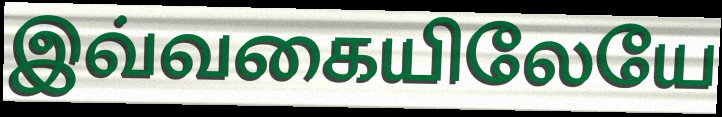
இவ்வகையிலேயே